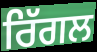
ਰਿੱਗਲ